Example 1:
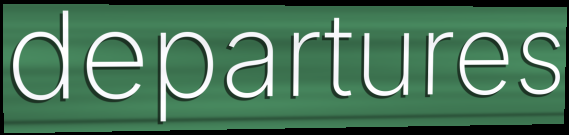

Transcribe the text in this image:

departures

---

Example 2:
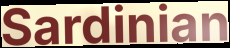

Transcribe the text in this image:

Sardinian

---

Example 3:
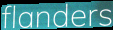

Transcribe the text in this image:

flanders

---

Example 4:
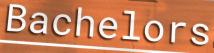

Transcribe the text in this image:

Bachelors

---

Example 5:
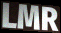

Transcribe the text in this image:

LMR